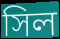
সিল